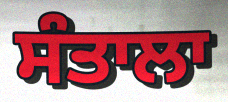
ਸੰਤਾਲਾ